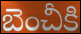
బెంచీకి